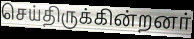
செய்திருக்கின்றனர்